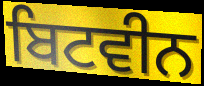
ਬਿਟਵੀਨ